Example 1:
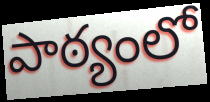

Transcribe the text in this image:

పాఠ్యంలో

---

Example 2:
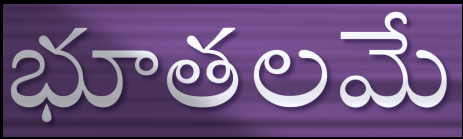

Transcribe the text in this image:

భూతలమే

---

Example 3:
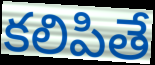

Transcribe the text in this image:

కలిపితే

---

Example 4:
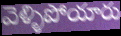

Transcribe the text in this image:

వెళ్ళిపోయారు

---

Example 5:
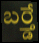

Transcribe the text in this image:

బర్త్డే